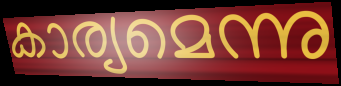
കാര്യമെന്നു